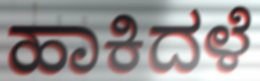
ಹಾಕಿದಳೆ